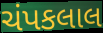
ચંપકલાલ